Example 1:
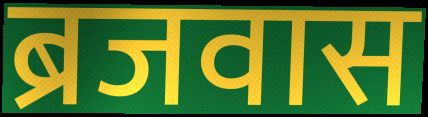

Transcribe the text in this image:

ब्रजवास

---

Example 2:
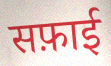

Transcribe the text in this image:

सफ़ाई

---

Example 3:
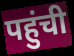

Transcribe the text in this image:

पहुंची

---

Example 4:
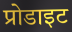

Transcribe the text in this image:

प्रोडाइट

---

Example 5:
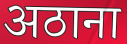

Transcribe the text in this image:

अठाना